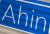
Ahin